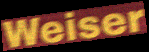
Weiser